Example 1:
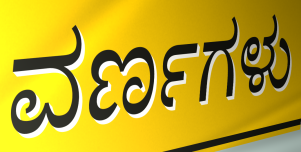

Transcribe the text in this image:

ವರ್ಣಗಳು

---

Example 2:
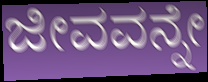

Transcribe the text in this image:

ಜೀವವನ್ನೇ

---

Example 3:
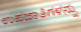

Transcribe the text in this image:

ಉಪಜಾತಿಗಳನ್ನು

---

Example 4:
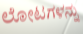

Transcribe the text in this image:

ಲೋಟಗಳನ್ನು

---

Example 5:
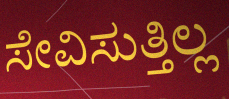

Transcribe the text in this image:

ಸೇವಿಸುತ್ತಿಲ್ಲ